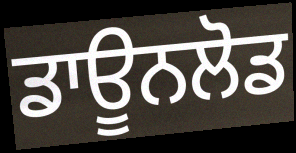
ਡਾਊਨਲੋਡ